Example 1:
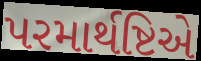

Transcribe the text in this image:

પરમાર્થષ્ટિએ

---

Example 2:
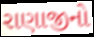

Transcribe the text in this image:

રાણાજીનો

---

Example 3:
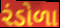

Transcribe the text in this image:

રંડોળા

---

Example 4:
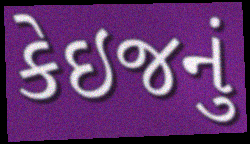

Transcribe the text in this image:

કેઇજનું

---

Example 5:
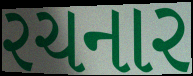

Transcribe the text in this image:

રચનાર